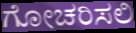
ಗೋಚರಿಸಲಿ